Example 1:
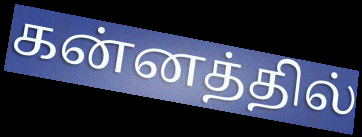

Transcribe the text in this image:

கன்னத்தில்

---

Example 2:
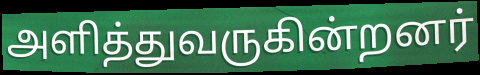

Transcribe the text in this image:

அளித்துவருகின்றனர்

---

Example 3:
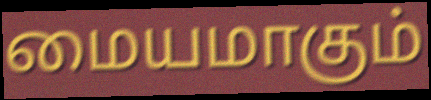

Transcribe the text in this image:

மையமாகும்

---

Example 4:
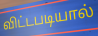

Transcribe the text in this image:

விட்டபடியால்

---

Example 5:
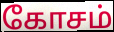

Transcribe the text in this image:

கோசம்